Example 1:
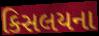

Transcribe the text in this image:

કિસલયના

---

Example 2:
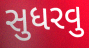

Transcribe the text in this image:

સુધરવુ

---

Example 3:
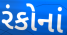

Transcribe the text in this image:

રંકોનાં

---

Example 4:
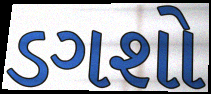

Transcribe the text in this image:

ડગશો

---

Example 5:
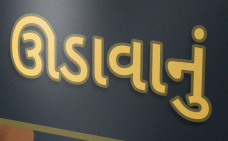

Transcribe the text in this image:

ઊડાવાનું